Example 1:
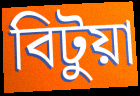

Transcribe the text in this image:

বিটুয়া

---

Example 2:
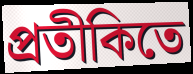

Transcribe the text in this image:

প্রতীকিতে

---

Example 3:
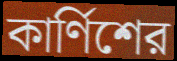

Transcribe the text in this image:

কার্ণিশের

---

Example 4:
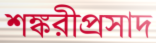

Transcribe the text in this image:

শঙ্করীপ্রসাদ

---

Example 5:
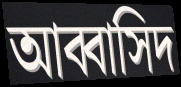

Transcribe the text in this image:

আব্বাসিদ